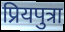
प्रियपुत्रा